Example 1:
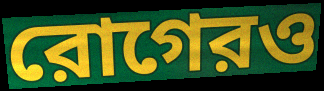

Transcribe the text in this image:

রোগেরও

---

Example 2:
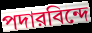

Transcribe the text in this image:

পদারবিন্দে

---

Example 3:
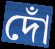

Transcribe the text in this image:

দোঁ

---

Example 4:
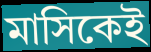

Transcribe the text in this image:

মাসিকেই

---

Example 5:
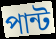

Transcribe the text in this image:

পান্ট